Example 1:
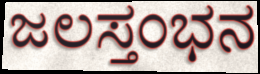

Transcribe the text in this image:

ಜಲಸ್ತಂಭನ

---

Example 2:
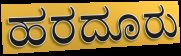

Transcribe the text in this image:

ಹರದೂರು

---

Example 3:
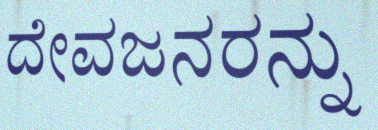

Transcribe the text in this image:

ದೇವಜನರನ್ನು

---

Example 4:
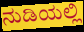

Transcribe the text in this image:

ನುಡಿಯಲ್ಲಿ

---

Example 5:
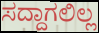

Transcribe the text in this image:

ಸದ್ದಾಗಲಿಲ್ಲ